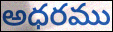
అధరము